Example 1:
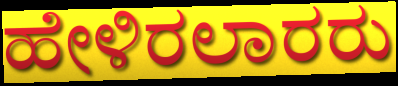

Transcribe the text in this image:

ಹೇಳಿರಲಾರರು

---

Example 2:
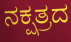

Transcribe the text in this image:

ನಕ್ಷತ್ರದ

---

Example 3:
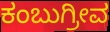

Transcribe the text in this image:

ಕಂಬುಗ್ರೀವ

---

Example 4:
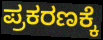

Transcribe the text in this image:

ಪ್ರಕರಣಕ್ಕೆ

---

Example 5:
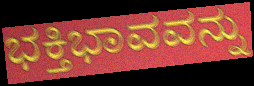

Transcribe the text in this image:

ಭಕ್ತಿಭಾವವನ್ನು